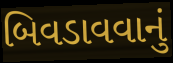
બિવડાવવાનું